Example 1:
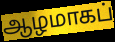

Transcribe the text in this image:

ஆழமாகப்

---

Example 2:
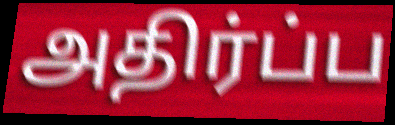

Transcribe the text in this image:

அதிர்ப்ப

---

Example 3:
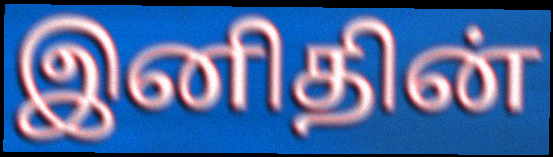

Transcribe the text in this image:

இனிதின்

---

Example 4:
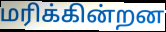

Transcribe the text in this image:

மரிக்கின்றன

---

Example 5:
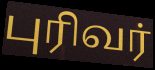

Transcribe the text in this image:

புரிவர்